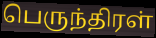
பெருந்திரள்